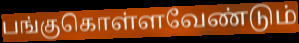
பங்குகொள்ளவேண்டும்